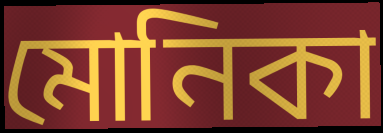
মোনিকা